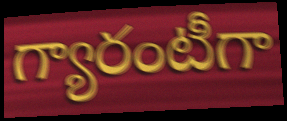
గ్యారంటీగా